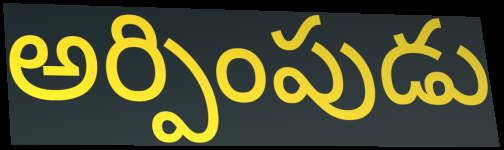
అర్పింపుడు